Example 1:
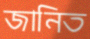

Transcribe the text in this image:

জানিত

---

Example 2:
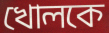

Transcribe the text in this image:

খোলকে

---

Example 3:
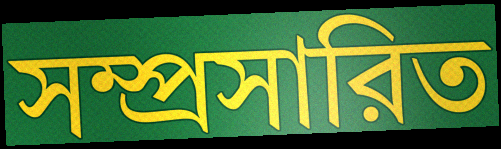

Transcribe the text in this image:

সম্প্রসারিত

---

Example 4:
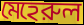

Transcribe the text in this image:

মেহেরুল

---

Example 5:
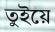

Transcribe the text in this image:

তুইয়ে